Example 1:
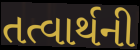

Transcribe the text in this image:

તત્વાર્થની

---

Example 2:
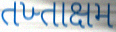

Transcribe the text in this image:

તખ્તાક્ષમ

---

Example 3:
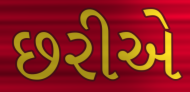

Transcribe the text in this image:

છરીએ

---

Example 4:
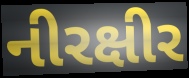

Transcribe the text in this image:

નીરક્ષીર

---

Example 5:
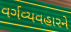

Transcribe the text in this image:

વર્ગવ્યવહારને